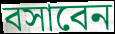
বসাবেন